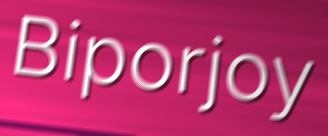
Biporjoy